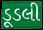
ડૂડલી